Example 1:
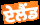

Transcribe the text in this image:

ਏਲੈਂਡ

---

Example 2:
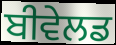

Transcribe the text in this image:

ਬੀਵੇਲਡ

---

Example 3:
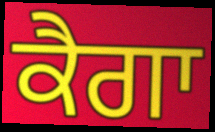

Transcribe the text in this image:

ਕੈਗਾ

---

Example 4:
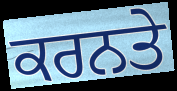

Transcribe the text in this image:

ਕਰਨਤੇ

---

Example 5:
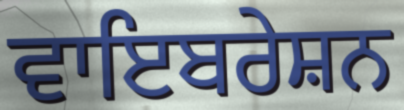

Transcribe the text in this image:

ਵਾਇਬਰੇਸ਼ਨ